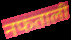
नफताली